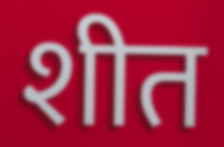
शीत